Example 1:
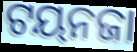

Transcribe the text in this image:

ଟୟନଜା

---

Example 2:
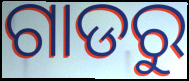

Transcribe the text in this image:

ଗାଡରୁ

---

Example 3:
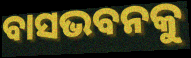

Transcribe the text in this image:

ବାସଭବନକୁ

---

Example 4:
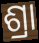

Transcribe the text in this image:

ଶ୍ରା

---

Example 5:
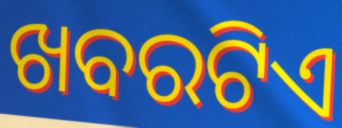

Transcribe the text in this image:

ଖବରଟିଏ